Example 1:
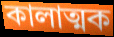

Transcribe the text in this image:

কালাত্মক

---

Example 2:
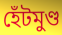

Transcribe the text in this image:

হেঁটমুণ্ড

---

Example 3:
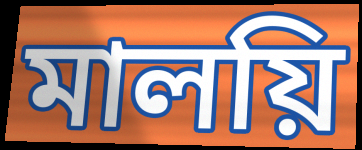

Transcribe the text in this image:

মালয়ি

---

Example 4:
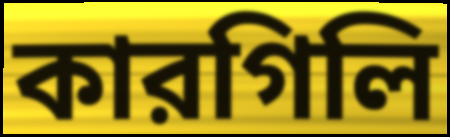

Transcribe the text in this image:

কারগিলি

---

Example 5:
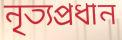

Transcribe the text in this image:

নৃত্যপ্রধান